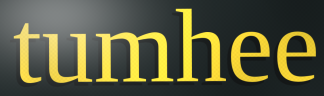
tumhee